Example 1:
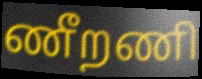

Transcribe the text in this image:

ணீறணி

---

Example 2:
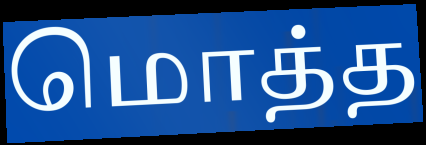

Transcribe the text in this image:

மொத்த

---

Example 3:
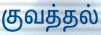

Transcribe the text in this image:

குவத்தல்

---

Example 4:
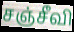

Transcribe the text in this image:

சஞ்சீவி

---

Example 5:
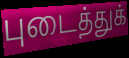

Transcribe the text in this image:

புடைத்துக்